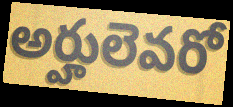
అర్హులెవరో